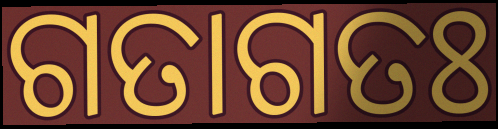
ଗତାଗତଃ